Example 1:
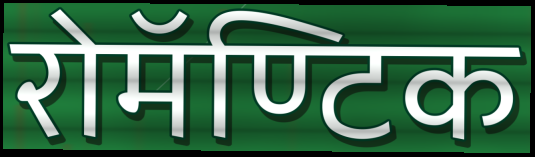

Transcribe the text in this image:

रोमॅण्टिक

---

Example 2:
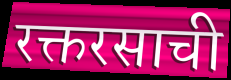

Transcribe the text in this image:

रक्तरसाची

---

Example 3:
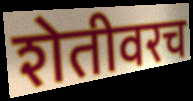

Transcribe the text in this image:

शेतीवरच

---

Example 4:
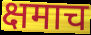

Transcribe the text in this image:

क्षमाच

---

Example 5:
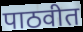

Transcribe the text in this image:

पाठवीत